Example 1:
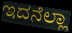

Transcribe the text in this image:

ಇದನೆಲ್ಲಾ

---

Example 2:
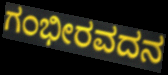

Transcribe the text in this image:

ಗಂಭೀರವದನ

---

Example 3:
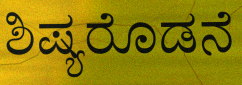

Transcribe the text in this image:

ಶಿಷ್ಯರೊಡನೆ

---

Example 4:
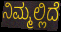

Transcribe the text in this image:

ನಿಮ್ಮಲ್ಲಿದೆ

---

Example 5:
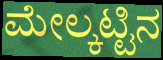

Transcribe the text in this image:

ಮೇಲ್ಕಟ್ಟಿನ